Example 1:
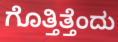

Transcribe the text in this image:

ಗೊತ್ತಿತ್ತೆಂದು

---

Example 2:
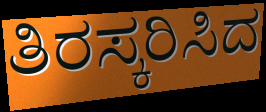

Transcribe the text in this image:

ತಿರಸ್ಕರಿಸಿದ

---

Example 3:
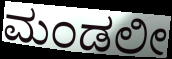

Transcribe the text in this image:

ಮಂಡಲೀ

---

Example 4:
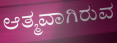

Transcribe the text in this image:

ಆತ್ಮವಾಗಿರುವ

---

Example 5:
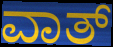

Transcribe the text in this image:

ವಾತ್